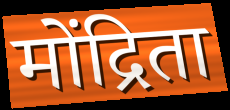
मोंद्रिता